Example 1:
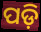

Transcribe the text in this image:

ପଡ଼ି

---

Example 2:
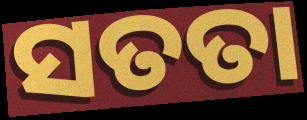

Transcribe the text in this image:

ସତତା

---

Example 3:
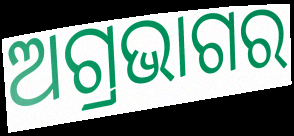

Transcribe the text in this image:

ଅଗ୍ରଭାଗର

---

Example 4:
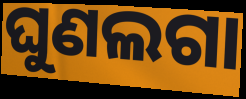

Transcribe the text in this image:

ଘୁଣଲଗା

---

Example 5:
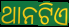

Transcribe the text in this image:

ଥାନଟିଏ